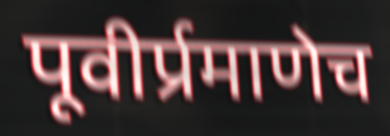
पूवीर्प्रमाणेच